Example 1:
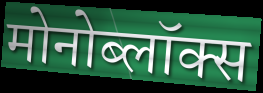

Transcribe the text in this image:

मोनोब्लॉक्स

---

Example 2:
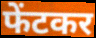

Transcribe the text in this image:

फेंटकर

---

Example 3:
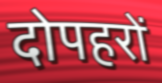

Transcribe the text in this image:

दोपहरों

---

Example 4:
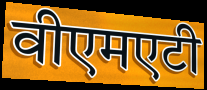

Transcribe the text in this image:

वीएमएटी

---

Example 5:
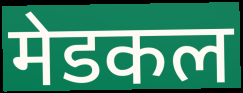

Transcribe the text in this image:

मेडकल